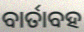
ବାର୍ତାବହ